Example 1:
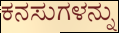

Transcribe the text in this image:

ಕನಸುಗಳನ್ನು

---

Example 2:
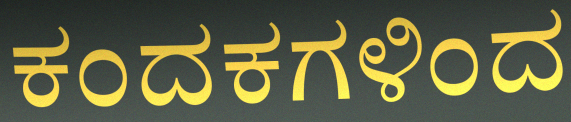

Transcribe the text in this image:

ಕಂದಕಗಳಿಂದ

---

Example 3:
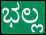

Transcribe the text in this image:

ಭಲ್ಲ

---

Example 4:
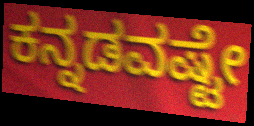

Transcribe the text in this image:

ಕನ್ನಡವಷ್ಟೇ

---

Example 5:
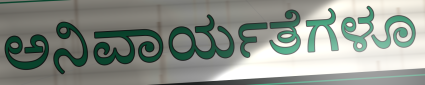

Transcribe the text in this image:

ಅನಿವಾರ್ಯತೆಗಳೂ